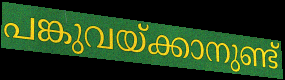
പങ്കുവയ്ക്കാനുണ്ട്